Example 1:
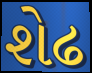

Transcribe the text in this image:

શેઢ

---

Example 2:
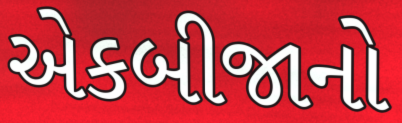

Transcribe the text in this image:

એકબીજાનો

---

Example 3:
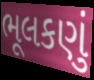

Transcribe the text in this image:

ભૂલકણું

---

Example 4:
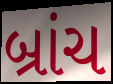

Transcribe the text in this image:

બ્રાંચ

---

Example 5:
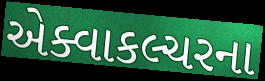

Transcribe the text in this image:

એક્વાકલ્ચરના